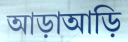
আড়াআড়ি